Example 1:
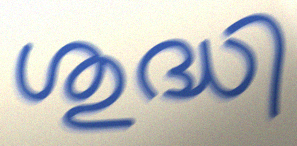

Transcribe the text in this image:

ശുദ്ധി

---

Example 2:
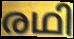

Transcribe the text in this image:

രഥി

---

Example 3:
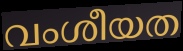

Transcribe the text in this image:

വംശീയത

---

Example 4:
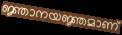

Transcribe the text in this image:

ജ്ഞാനയജ്ഞമാണ്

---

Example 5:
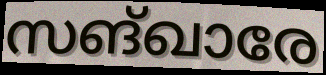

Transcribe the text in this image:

സങ്ഖാരേ